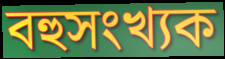
বহুসংখ্যক